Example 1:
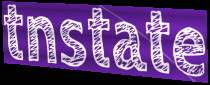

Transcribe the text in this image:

tnstate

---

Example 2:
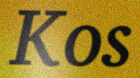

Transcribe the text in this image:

Kos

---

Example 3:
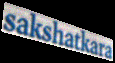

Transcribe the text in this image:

sakshatkara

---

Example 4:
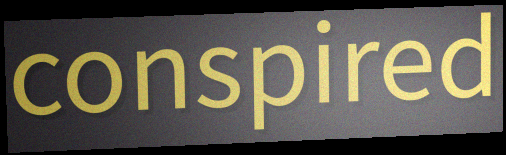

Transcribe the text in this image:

conspired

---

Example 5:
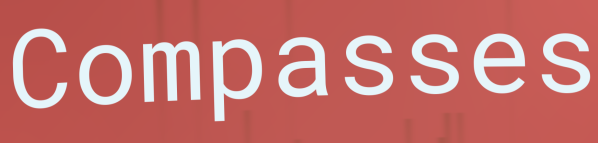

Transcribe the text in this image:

Compasses